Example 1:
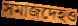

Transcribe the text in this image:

সমাজদেহও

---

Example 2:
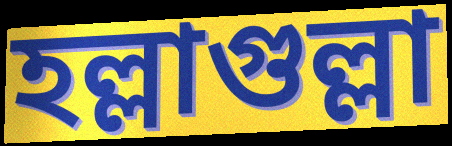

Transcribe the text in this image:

হল্লাগুল্লা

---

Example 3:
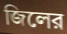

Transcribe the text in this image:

জিলের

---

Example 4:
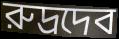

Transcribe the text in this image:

রুদ্রদেব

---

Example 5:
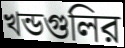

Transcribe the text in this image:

খন্ডগুলির